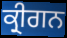
ਕ੍ਰੀਗਨ